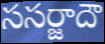
ససర్జాదౌ